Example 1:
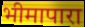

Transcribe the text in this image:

भीमापारा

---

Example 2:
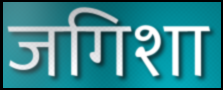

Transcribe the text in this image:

जगिशा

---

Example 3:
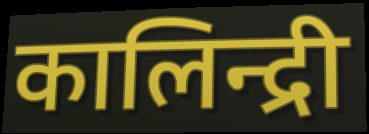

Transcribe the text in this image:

कालिन्द्री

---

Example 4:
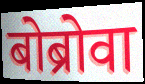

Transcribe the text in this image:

बोब्रोवा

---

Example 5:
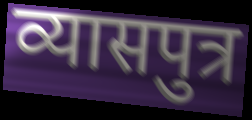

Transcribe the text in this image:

व्यासपुत्र